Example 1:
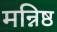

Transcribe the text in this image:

मन्निष्ठ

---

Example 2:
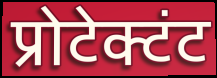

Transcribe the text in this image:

प्रोटेक्टंट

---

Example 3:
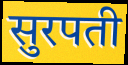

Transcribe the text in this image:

सुरपती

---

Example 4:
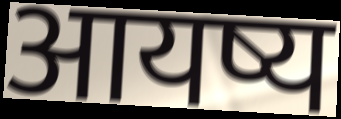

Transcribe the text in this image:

आयष्य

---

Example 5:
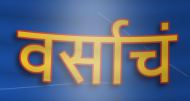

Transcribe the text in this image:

वर्साचं